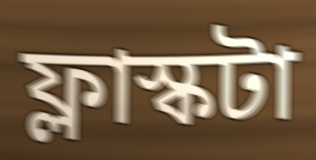
ফ্লাস্কটা